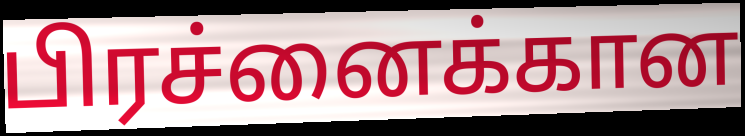
பிரச்னைக்கான